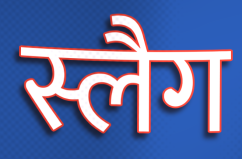
स्लैग